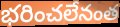
భరించలేనంత